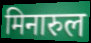
मिनारुल